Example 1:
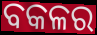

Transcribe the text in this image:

ବକଳର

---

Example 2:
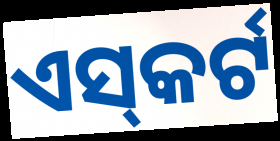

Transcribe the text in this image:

ଏସ୍‌କର୍ଟ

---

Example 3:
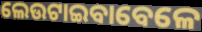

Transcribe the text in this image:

ଲେଉଟାଇବାବେଳେ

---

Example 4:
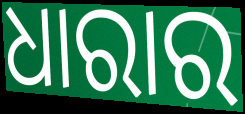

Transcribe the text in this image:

ଧାରାର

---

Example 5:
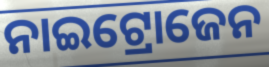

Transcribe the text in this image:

ନାଇଟ୍ରୋଜେନ